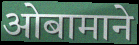
ओबामाने